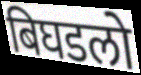
बिघडलो